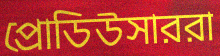
প্রোডিউসাররা